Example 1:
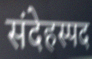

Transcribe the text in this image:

संदेहस्पद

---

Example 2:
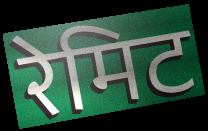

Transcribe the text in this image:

रेमिट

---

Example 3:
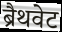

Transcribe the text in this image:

ब्रैथवेट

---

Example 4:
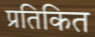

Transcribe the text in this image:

प्रतिकित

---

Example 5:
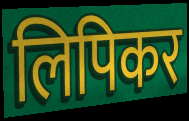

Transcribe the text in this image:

लिपिकर